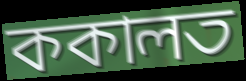
ককালত